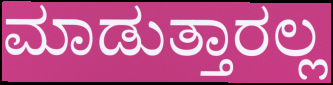
ಮಾಡುತ್ತಾರಲ್ಲ